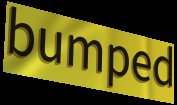
bumped